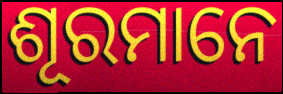
ଶୂରମାନେ